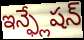
ఇన్ఫ్లేషన్